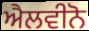
ਐਲਵੀਨੋ